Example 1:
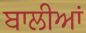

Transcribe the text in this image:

ਬਾਲੀਆਂ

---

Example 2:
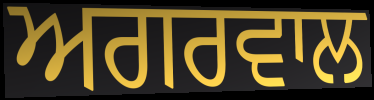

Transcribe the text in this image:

ਅਗਰਵਾਲ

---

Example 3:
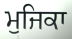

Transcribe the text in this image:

ਮੁਜਿਕਾ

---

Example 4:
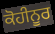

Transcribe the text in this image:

ਕੋਹੀਨੂਰ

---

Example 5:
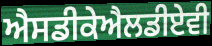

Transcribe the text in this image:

ਐਸਡੀਕੇਐਲਡੀਏਵੀ